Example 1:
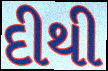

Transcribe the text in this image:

દીથી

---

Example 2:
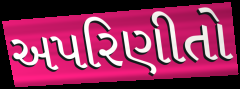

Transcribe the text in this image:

અપરિણીતો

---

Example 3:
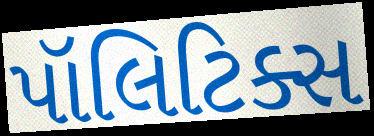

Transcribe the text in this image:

પૉલિટિક્સ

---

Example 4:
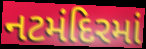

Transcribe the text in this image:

નટમંદિરમાં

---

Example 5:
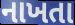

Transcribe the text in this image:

નાખતા